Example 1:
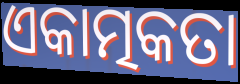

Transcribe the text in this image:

ଏକାତ୍ମକତା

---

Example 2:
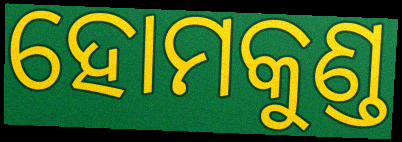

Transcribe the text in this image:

ହୋମକୁଣ୍ଡ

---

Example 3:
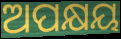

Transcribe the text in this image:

ଅପକ୍ଷୟ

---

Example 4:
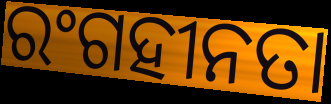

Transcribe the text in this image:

ରଂଗହୀନତା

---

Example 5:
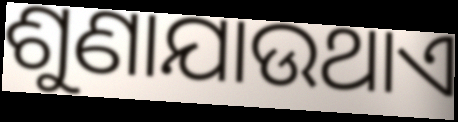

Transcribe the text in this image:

ଶୁଣାଯାଉଥାଏ